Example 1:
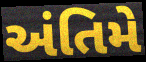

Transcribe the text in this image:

અંતિમે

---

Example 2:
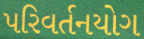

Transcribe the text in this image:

પરિવર્તનયોગ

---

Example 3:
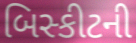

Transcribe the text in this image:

બિસ્કીટની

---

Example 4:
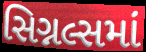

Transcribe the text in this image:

સિગ્નલ્સમાં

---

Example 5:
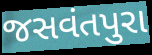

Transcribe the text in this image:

જસવંતપુરા